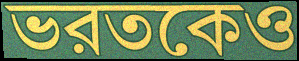
ভরতকেও